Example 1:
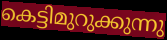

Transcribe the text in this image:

കെട്ടിമുറുക്കുന്നു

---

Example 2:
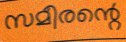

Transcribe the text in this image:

സമീരന്റെ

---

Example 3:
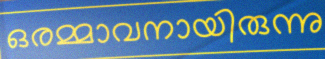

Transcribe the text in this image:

ഒരമ്മാവനായിരുന്നു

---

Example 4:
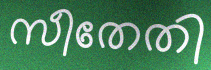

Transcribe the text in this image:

സീതേതി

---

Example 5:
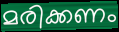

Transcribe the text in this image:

മരിക്കണം